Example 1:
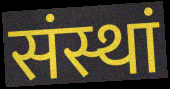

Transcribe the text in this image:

संस्थां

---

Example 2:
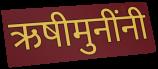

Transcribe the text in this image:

ऋषीमुनींनी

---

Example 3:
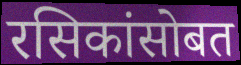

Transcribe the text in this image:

रसिकांसोबत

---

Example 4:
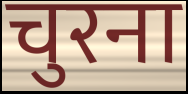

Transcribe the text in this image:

चुरना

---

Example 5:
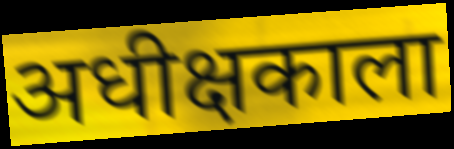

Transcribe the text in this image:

अधीक्षकाला